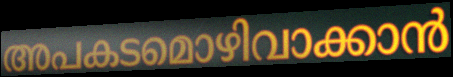
അപകടമൊഴിവാക്കാൻ